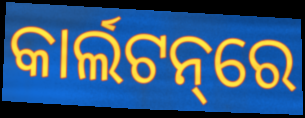
କାର୍ଲଟନ୍‌ରେ